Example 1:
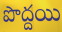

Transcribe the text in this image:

పొద్దయి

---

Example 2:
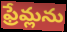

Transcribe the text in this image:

ఫ్రేమ్లను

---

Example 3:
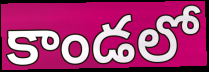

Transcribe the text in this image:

కాండలో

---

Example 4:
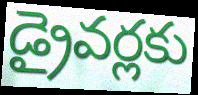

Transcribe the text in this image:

డ్రైవర్లకు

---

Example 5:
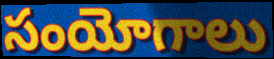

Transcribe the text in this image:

సంయోగాలు